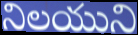
నిలయుని